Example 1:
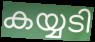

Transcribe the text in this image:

കയ്യടി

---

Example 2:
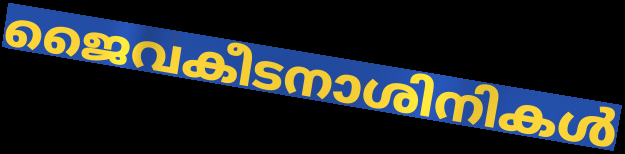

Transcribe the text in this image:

ജൈവകീടനാശിനികൾ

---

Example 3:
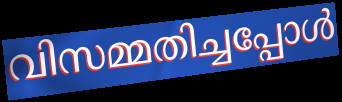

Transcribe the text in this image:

വിസമ്മതിച്ചപ്പോൾ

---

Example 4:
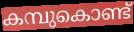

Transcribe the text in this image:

കമ്പുകൊണ്ട്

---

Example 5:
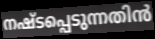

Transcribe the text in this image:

നഷ്ടപ്പെടുന്നതിൻ